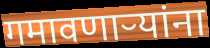
गमावणाऱ्यांना